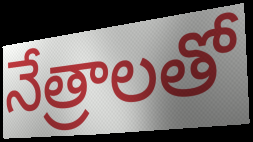
నేత్రాలతో